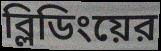
ব্লিডিংয়ের